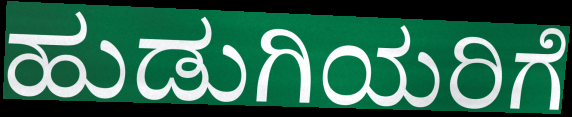
ಹುಡುಗಿಯರಿಗೆ